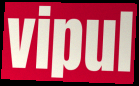
vipul